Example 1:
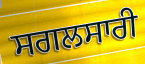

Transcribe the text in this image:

ਸਗਲਸਾਰੀ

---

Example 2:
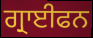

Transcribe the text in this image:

ਗ੍ਰਾਈਫਨ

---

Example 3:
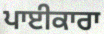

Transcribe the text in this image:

ਪਾਈਕਾਰਾ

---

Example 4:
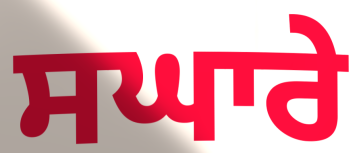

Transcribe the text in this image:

ਸਘਾਰੇ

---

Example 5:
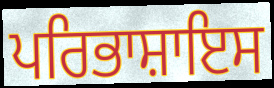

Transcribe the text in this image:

ਪਰਿਭਾਸ਼ਾਇਸ